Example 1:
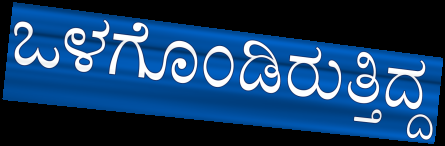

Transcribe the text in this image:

ಒಳಗೊಂಡಿರುತ್ತಿದ್ದ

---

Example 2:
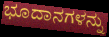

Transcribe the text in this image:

ಭೂದಾನಗಳನ್ನು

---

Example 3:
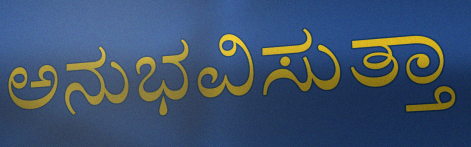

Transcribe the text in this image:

ಅನುಭವಿಸುತ್ತಾ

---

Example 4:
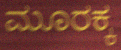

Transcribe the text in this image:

ಮೂರಕ್ಕ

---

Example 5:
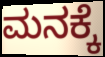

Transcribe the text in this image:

ಮನಕ್ಕೆ